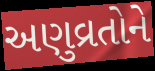
અણુવ્રતોને